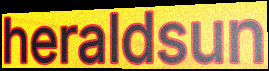
heraldsun